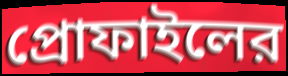
প্রোফাইলের